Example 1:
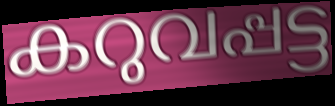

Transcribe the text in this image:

കറുവപ്പട്ട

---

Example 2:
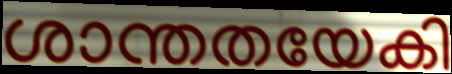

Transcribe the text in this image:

ശാന്തതയേകി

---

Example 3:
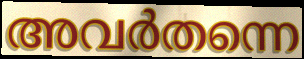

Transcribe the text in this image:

അവർതന്നെ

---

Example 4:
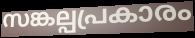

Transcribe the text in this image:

സങ്കല്പപ്രകാരം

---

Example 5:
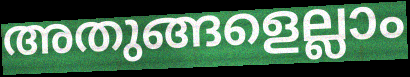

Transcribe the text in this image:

അതുങ്ങളെല്ലാം